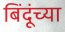
बिंदूंच्या